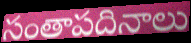
సంతాపదినాలు